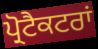
ਪ੍ਰੋਟੈਕਟਰਾਂ